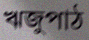
ঋজুপাঠ